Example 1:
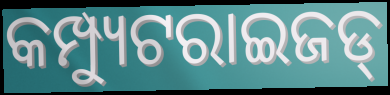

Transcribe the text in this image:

କମ୍ପ୍ୟୁଟରାଇଜଡ୍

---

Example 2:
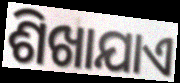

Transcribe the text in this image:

ଶିଖାଯାଏ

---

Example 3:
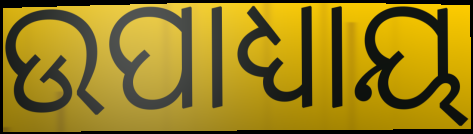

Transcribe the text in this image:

ଉପାଧ୍ୟାୟ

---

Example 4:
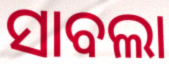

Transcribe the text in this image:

ସାବଲା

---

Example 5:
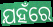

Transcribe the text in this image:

ଯହଁରେ